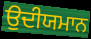
ਉਦੀਯਮਾਨ